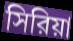
সিরিয়া